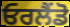
ਓਰਲੈਂਡੋ